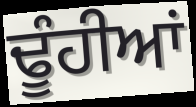
ਢੂੰਹੀਆਂ